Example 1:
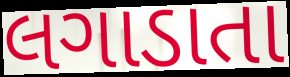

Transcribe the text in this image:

લગાડાતા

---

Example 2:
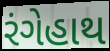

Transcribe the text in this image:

રંગેહાથ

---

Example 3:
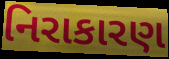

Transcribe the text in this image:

નિરાકારણ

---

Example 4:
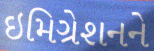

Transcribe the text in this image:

ઇમિગ્રેશનને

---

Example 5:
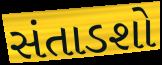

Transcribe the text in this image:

સંતાડશો